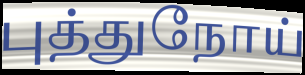
புத்துநோய்